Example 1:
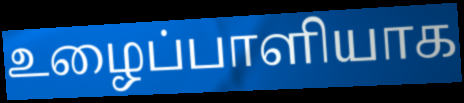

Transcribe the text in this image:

உழைப்பாளியாக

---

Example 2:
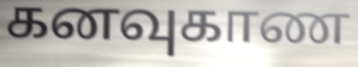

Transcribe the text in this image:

கனவுகாண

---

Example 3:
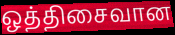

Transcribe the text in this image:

ஒத்திசைவான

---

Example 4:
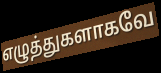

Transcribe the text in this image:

எழுத்துகளாகவே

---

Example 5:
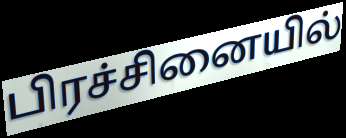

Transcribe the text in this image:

பிரச்சினையில்